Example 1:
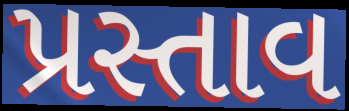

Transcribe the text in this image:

પ્રસ્તાવ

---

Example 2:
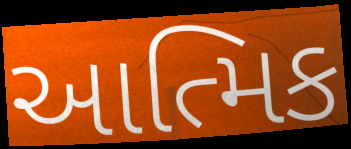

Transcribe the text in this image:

આત્મિક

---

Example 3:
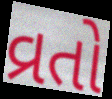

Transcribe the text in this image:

વ્રતો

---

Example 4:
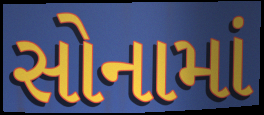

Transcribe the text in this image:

સોનામાં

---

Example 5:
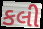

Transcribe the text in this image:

કલી